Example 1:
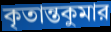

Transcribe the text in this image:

কৃতান্তকুমার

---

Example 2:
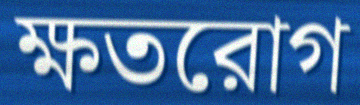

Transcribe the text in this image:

ক্ষতরোগ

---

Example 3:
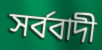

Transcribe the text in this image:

সর্ববাদী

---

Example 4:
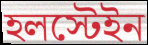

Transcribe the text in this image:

হলস্টেইন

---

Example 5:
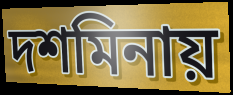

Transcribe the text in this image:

দশমিনায়